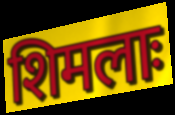
शिमलाः